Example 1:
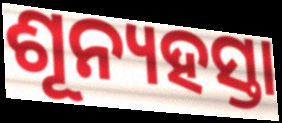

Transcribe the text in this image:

ଶୂନ୍ୟହସ୍ତା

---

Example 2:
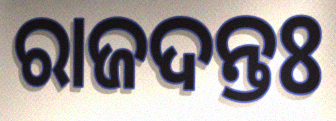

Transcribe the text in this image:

ରାଜଦନ୍ତଃ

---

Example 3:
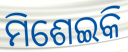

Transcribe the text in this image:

ମିଶେଇକି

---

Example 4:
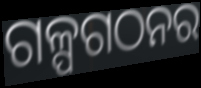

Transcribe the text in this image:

ଗଳ୍ପଗଠନର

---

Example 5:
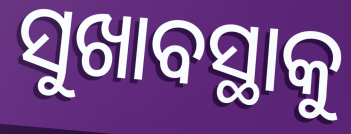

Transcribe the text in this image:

ସୁଖାବସ୍ଥାକୁ